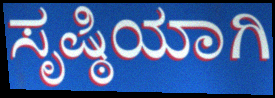
ಸೃಷ್ಠಿಯಾಗಿ